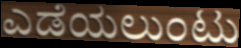
ಎಡೆಯಲುಂಟು